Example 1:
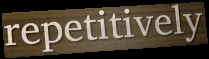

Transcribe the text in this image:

repetitively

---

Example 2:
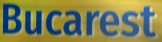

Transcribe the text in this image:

Bucarest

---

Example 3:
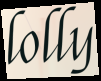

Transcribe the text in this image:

lolly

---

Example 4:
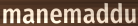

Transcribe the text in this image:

manemaddu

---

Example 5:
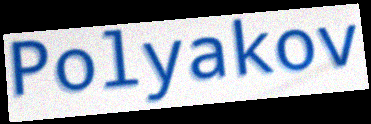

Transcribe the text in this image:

Polyakov